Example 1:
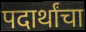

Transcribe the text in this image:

पदार्थांचा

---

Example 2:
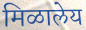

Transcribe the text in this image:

मिळालेय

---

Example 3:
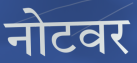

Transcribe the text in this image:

नोटवर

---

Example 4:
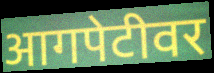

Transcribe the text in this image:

आगपेटीवर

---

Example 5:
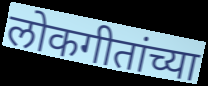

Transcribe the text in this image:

लोकगीतांच्या